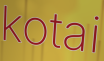
kotai